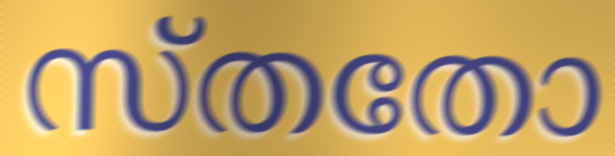
സ്തതോ